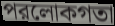
পরলোকগতা